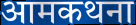
आमकथना